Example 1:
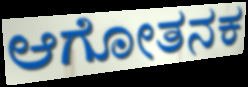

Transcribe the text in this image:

ಆಗೋತನಕ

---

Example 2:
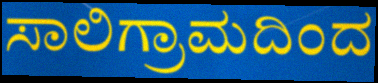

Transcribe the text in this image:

ಸಾಲಿಗ್ರಾಮದಿಂದ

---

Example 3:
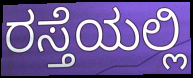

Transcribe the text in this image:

ರಸ್ತೆಯಲ್ಲಿ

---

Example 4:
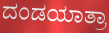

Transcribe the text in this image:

ದಂಡಯಾತ್ರಾ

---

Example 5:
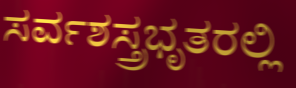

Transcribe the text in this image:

ಸರ್ವಶಸ್ತ್ರಭೃತರಲ್ಲಿ